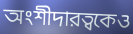
অংশীদারত্বকেও